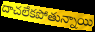
దాచలేకపోతున్నాయి